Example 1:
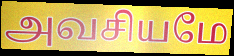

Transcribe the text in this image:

அவசியமே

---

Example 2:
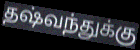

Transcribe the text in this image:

தஷ்வந்துக்கு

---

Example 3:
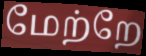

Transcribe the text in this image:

மேற்றே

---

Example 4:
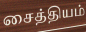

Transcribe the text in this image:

சைத்தியம்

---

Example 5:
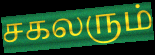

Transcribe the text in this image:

சகலரும்